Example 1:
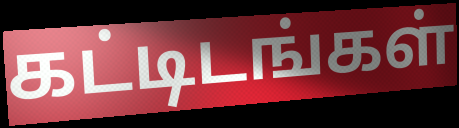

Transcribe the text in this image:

கட்டிடங்கள்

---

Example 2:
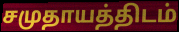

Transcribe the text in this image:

சமுதாயத்திடம்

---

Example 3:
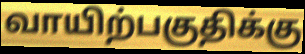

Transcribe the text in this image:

வாயிற்பகுதிக்கு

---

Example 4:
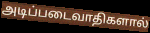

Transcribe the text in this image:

அடிப்படைவாதிகளால்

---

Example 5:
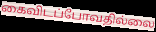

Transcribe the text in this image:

கைவிடப்போவதில்லை